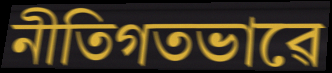
নীতিগতভাৱে